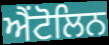
ਐਂਟੋਲਿਨ